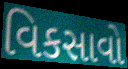
વિકસાવો